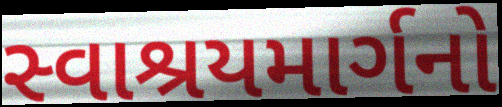
સ્વાશ્રયમાર્ગનો